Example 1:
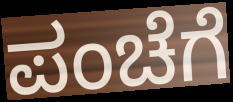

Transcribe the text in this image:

ಪಂಚೆಗೆ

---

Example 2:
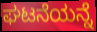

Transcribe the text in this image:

ಘಟನೆಯನ್ನೆ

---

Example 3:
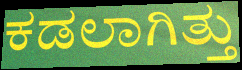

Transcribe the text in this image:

ಕಡಲಾಗಿತ್ತು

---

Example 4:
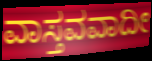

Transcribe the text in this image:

ವಾಸ್ತವವಾದೀ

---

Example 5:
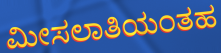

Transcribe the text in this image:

ಮೀಸಲಾತಿಯಂತಹ